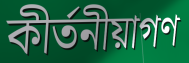
কীর্তনীয়াগণ